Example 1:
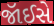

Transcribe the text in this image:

જૉઈસે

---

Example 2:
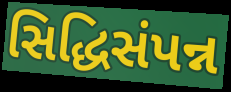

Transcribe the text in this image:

સિદ્ધિસંપન્ન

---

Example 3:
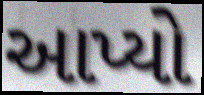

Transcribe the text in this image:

આપ્યો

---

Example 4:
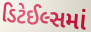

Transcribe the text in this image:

ડિટેઈલ્સમાં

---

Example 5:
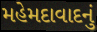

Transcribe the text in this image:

મહેમદાવાદનું